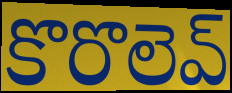
కొరొలెవ్